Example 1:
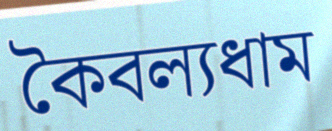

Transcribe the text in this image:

কৈবল্যধাম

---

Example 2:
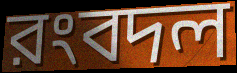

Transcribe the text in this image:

রংবদল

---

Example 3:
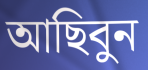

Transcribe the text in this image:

আছিবুন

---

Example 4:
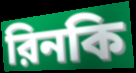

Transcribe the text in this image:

রিনকি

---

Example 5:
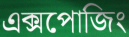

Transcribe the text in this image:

এক্সপোজিং